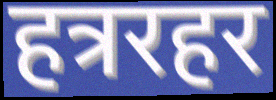
हत्ररहर